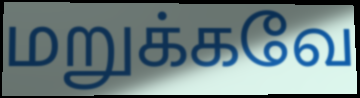
மறுக்கவே